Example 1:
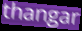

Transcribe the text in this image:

thangar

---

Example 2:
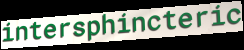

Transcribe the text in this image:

intersphincteric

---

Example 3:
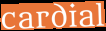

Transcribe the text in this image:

cardial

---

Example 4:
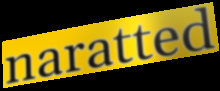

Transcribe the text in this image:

naratted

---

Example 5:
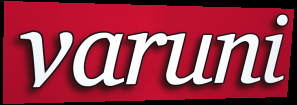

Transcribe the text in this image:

varuni